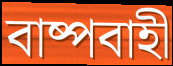
বাষ্পবাহী